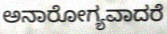
ಅನಾರೋಗ್ಯವಾದರೆ